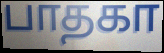
பாதகா